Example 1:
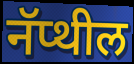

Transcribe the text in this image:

नॅप्थील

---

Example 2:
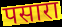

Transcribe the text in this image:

पसारा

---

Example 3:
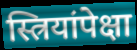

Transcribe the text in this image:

स्त्रियांपेक्षा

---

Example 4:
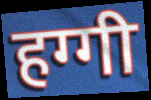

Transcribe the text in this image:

हग्गी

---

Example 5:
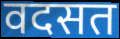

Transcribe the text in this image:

वदसत